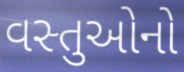
વસ્તુઓનો